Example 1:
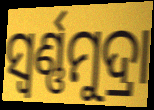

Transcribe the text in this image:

ସ୍ୱର୍ଣ୍ଣମୁଦ୍ରା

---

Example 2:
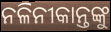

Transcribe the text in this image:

ନଳିନୀକାନ୍ତଙ୍କୁ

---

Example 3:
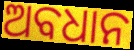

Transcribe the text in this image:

ଅବଧାନ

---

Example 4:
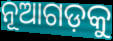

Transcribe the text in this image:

ନୂଆଗଡ଼କୁ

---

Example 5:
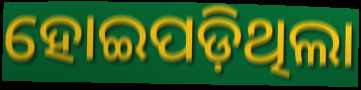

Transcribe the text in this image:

ହୋଇପଡ଼ିଥିଲା